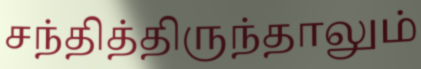
சந்தித்திருந்தாலும்